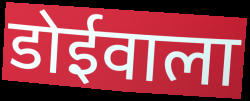
डोईवाला